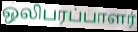
ஒலிபரப்பாளர்